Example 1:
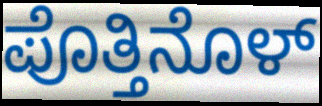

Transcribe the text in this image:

ಪೊತ್ತಿನೊಳ್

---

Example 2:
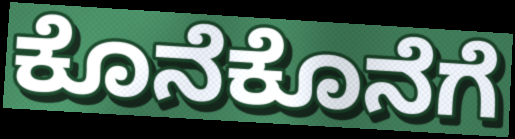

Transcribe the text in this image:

ಕೊನೆಕೊನೆಗೆ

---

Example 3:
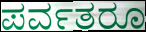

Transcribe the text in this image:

ಪರ್ವತರೂ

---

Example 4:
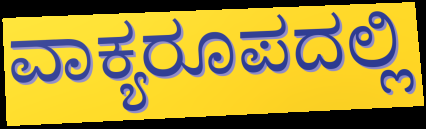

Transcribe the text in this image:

ವಾಕ್ಯರೂಪದಲ್ಲಿ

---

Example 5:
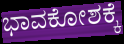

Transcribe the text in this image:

ಭಾವಕೋಶಕ್ಕೆ